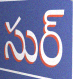
సుర్